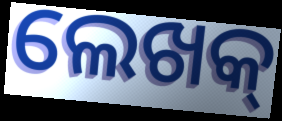
ଲେଖକ୍